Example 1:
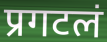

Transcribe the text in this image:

प्रगटलं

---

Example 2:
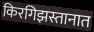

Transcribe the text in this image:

किरगिझस्तानात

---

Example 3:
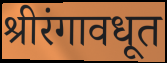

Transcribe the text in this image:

श्रीरंगावधूत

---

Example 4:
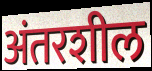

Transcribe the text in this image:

अंतरशील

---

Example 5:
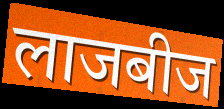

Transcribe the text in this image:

लाजबीज